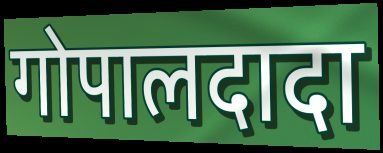
गोपालदादा